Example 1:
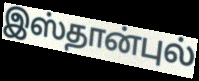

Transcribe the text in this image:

இஸ்தான்புல்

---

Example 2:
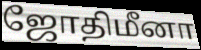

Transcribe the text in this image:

ஜோதிமீனா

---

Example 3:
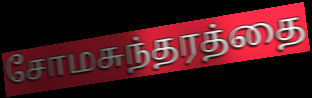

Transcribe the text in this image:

சோமசுந்தரத்தை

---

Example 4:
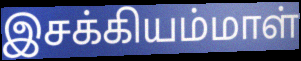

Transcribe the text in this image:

இசக்கியம்மாள்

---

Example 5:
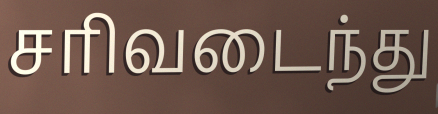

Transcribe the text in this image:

சரிவடைந்து